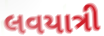
લવયાત્રી